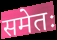
समेतः